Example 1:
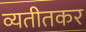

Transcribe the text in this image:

व्यतीतकर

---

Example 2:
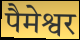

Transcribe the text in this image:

पैमेश्वर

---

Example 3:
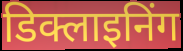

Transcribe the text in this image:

डिक्लाइनिंग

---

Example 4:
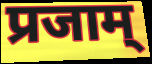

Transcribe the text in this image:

प्रजाम्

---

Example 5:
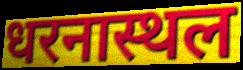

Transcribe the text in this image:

धरनास्थल